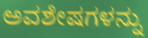
ಅವಶೇಷಗಳನ್ನು